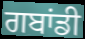
ਗਬਾਂਡੀ